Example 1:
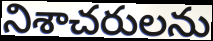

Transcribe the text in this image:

నిశాచరులను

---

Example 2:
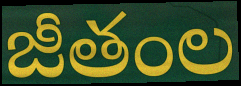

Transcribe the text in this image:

జీతంల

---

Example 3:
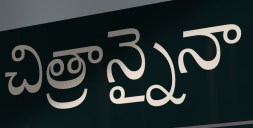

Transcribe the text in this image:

చిత్రాన్నైనా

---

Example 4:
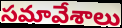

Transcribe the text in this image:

సమావేశాలు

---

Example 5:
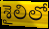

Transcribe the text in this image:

శైలిలో